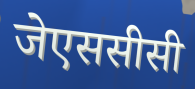
जेएससीसी